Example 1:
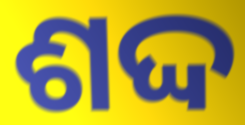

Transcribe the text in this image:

ଶଦ୍ଦ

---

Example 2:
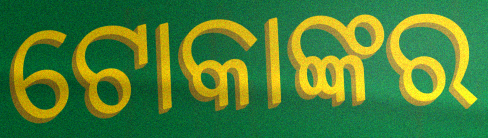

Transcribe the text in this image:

ଟୋକାଙ୍କର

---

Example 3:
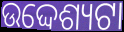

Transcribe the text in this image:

ଉଦ୍ଦେଶ୍ୟଟା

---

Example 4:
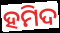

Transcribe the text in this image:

ହମିଦ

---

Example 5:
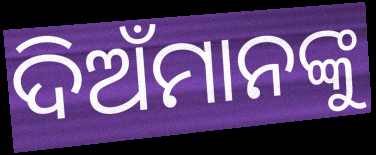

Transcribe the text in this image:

ଦିଅଁମାନଙ୍କୁ